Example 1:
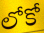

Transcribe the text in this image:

లోకో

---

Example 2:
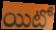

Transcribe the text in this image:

యిటో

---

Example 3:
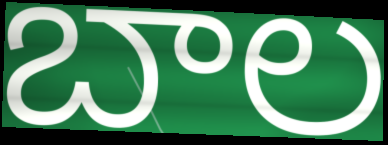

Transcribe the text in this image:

బాల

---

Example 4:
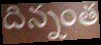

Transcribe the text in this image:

దిన్నంత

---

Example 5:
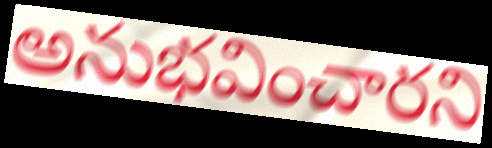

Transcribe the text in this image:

అనుభవించారని